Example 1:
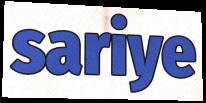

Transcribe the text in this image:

sariye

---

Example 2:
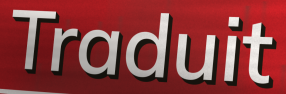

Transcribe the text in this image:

Traduit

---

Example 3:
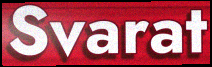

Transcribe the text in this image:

Svarat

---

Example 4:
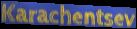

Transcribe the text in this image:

Karachentsev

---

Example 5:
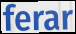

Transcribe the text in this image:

ferar